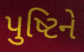
પુષ્ટિને